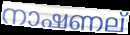
നാഷണല്